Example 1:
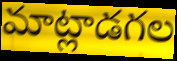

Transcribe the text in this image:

మాట్లాడగల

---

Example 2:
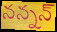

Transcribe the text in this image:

నన్నన్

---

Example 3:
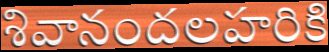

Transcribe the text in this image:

శివానందలహరికి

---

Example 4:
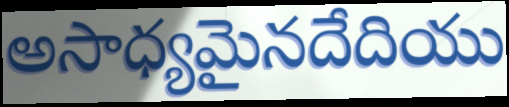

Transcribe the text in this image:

అసాధ్యమైనదేదియు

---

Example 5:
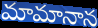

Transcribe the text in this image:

మామానాన